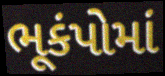
ભૂકંપોમાં